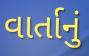
વાર્તાનું